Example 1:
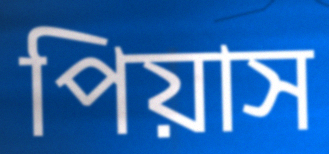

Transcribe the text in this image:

পিয়াস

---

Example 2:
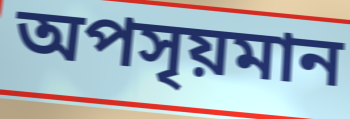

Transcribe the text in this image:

অপসৃয়মান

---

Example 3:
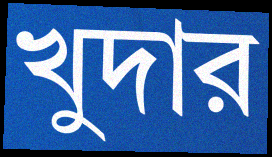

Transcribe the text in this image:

খুদার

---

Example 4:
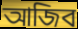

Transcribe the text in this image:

আজিব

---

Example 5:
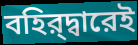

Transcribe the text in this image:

বহির্‌দ্বারেই